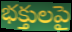
భక్తులపై